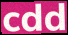
cdd